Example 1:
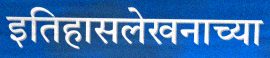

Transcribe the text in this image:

इतिहासलेखनाच्या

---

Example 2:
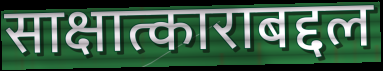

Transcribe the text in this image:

साक्षात्काराबद्दल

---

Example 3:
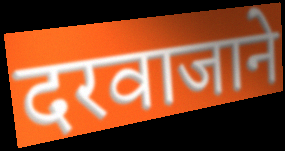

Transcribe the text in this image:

दरवाजाने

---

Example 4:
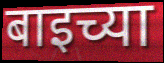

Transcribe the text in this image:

बाइच्या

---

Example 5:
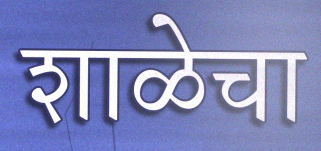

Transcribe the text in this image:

शाळेचा